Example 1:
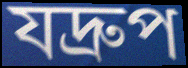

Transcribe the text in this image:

যদ্রুপ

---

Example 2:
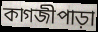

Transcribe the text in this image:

কাগজীপাড়া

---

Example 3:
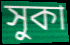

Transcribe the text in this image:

সুকা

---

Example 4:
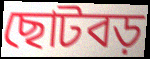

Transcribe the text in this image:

ছোটবড়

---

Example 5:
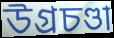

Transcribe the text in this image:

উগ্রচণ্ডা